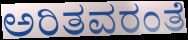
ಅರಿತವರಂತೆ